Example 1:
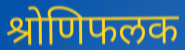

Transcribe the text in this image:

श्रोणिफलक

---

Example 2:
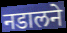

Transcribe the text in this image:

नडालने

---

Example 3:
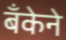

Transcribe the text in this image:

बँकेने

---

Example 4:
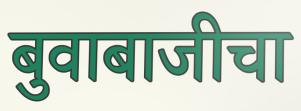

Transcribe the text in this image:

बुवाबाजीचा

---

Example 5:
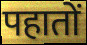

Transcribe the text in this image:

पहातों